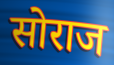
सोराज